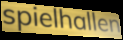
spielhallen